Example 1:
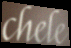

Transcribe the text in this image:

chele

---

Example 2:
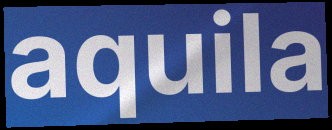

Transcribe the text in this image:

aquila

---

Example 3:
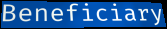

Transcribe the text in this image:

Beneficiary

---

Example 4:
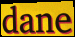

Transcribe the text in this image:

dane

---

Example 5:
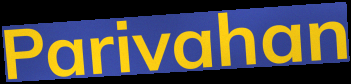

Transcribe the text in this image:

Parivahan